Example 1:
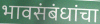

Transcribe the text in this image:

भावसंबंधांचा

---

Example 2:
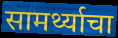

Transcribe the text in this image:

सामर्थ्याचा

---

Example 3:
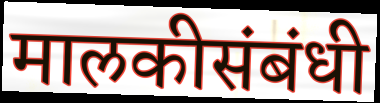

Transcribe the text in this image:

मालकीसंबंधी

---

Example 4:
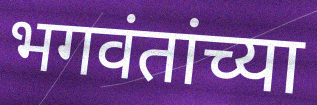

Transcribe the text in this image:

भगवंतांच्या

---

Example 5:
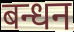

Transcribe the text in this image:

बन्धन